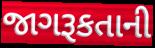
જાગરૂકતાની